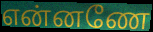
என்னணே